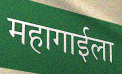
महागाईला